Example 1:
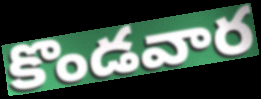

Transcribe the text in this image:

కొండవార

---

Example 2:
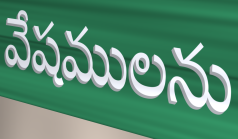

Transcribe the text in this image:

వేషములను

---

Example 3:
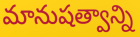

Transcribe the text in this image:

మానుషత్వాన్ని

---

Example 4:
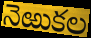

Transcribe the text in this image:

నెఱుకల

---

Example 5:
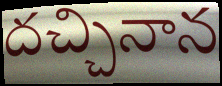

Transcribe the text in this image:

దచ్చినాన